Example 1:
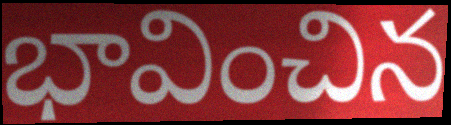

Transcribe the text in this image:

భావించిన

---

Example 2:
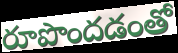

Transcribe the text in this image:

రూపొందడంతో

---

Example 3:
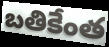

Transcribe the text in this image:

బతికేంత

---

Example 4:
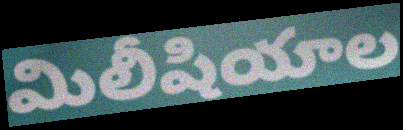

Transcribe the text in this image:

మిలీషియాల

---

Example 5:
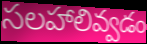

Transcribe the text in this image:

సలహాలివ్వడం